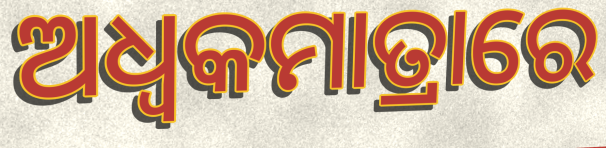
ଅଧ୍ଵକମାତ୍ରାରେ